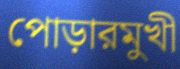
পোড়ারমুখী